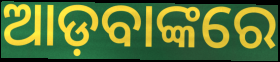
ଆଡ଼ବାଙ୍କରେ